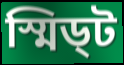
স্মিড্ট